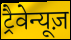
ट्रैवेन्यूज़